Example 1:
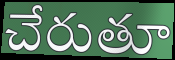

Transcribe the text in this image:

చేరుతూ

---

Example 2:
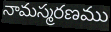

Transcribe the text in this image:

నామస్మరణము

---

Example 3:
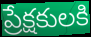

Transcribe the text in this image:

ప్రేక్షకులకి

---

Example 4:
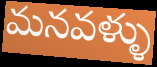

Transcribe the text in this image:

మనవళ్ళు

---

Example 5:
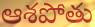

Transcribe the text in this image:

ఆశపోతు